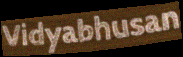
Vidyabhusan